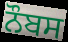
ਨੌਬਸ